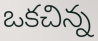
ఒకచిన్న